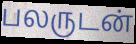
பலருடன்